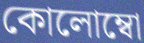
কোলোম্বো